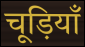
चूड़ियाँ